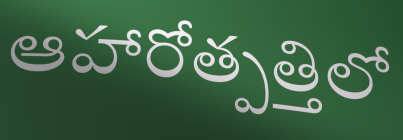
ఆహారోత్పత్తిలో